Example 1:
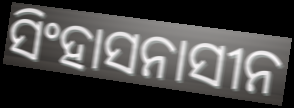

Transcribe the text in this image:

ସିଂହାସନାସୀନ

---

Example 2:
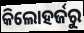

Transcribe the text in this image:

କିଲୋହର୍ଜରୁ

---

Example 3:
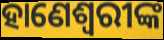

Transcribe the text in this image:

ହାଣେଶ୍ୱରୀଙ୍କ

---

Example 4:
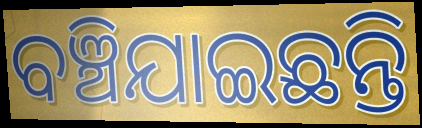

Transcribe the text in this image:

ବଞ୍ଚିଯାଇଛନ୍ତି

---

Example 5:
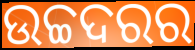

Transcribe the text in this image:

ଉଚ୍ଚଦରର